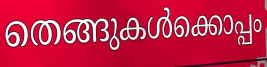
തെങ്ങുകൾക്കൊപ്പം